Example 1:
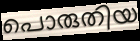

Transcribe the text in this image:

പൊരുതിയ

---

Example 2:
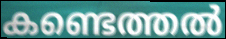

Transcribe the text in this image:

കണ്ടെത്തൽ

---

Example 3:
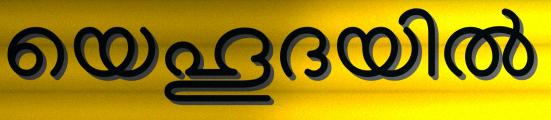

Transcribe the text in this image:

യെഹൂദയിൽ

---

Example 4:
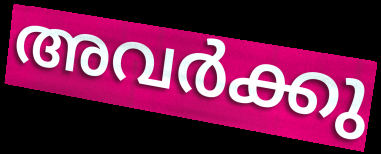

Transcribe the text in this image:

അവർക്കു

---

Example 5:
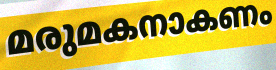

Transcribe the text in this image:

മരുമകനാകണം